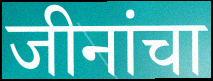
जीनांचा